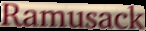
Ramusack